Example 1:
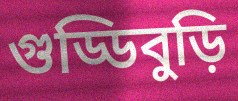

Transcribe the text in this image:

গুড্ডিবুড়ি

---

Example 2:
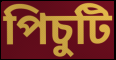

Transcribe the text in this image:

পিচুটি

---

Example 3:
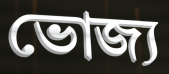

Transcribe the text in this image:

ভোজ্য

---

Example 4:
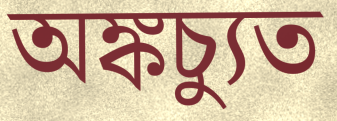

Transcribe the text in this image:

অঙ্কচ্যুত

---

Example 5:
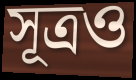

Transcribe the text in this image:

সূত্রও